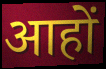
आहों